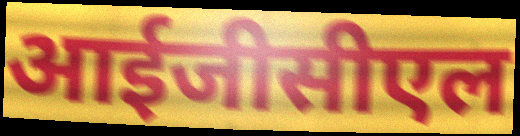
आईजीसीएल